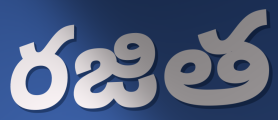
రజిత